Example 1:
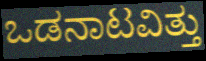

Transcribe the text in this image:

ಒಡನಾಟವಿತ್ತು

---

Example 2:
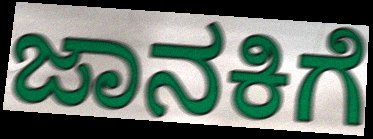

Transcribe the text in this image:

ಜಾನಕಿಗೆ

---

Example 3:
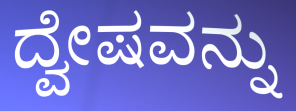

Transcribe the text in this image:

ದ್ವೇಷವನ್ನು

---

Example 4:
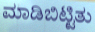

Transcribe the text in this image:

ಮಾಡಿಬಿಟ್ಟಿತು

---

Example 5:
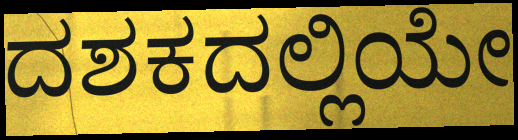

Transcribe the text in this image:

ದಶಕದಲ್ಲಿಯೇ